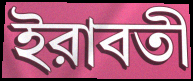
ইরাবতী